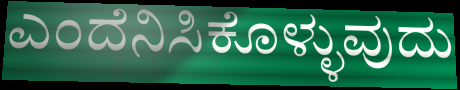
ಎಂದೆನಿಸಿಕೊಳ್ಳುವುದು